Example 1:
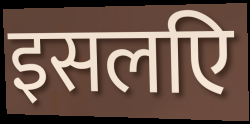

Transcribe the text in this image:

इसलएि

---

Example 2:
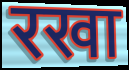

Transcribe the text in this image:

रखा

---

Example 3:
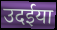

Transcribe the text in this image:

उदईया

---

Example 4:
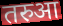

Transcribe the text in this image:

तरुआ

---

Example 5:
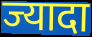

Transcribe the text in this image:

ज्‍यादा